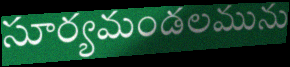
సూర్యమండలమును